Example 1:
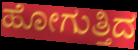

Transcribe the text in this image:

ಹೋಗುತ್ತಿದ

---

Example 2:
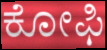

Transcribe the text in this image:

ಕೋಫಿ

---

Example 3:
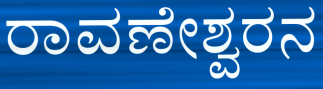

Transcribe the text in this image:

ರಾವಣೇಶ್ವರನ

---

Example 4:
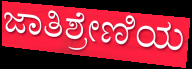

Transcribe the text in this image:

ಜಾತಿಶ್ರೇಣಿಯ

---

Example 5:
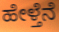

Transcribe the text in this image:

ಹೇಳ್ತೆನೆ